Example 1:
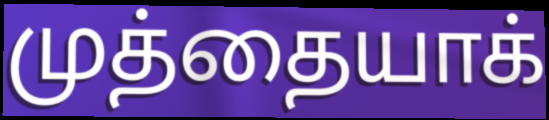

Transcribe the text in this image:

முத்தையாக்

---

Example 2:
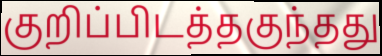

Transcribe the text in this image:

குறிப்பிடத்தகுந்தது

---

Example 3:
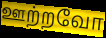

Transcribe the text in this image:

ஊற்றவோ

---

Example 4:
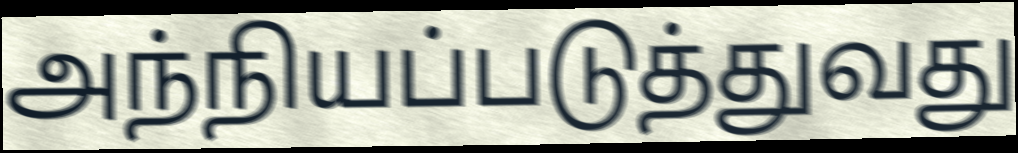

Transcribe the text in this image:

அந்நியப்படுத்துவது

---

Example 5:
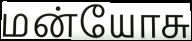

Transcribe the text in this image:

மன்யோசு